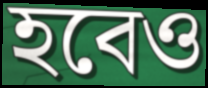
হবেও